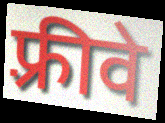
फ़्रीवे